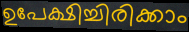
ഉപേക്ഷിച്ചിരിക്കാം